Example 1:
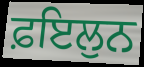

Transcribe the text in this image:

ਫ਼ਇਲੁਨ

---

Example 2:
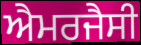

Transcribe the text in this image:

ਐਮਰਜੈਸੀ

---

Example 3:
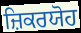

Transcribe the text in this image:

ਜ਼ਿਕਰਯੋਹ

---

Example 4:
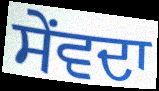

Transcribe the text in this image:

ਸੇਂਵਦਾ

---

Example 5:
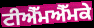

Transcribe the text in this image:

ਟੀਐੱਮਐੱਮਕੇ